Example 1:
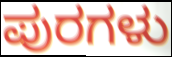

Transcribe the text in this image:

ಪುರಗಳು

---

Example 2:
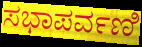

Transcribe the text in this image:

ಸಭಾಪರ್ವಣಿ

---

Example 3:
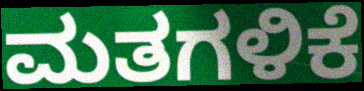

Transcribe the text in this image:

ಮತಗಳಿಕೆ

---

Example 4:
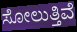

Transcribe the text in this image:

ಸೋಲುತ್ತಿವೆ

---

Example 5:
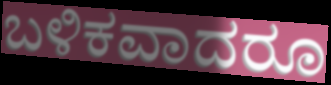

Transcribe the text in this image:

ಬಳಿಕವಾದರೂ